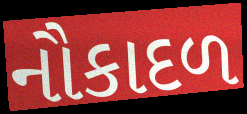
નૌકાદળ